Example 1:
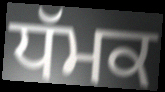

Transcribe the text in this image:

ਧੱਮਕ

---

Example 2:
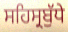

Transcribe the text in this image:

ਸਹਿਸ੍ਰਬੁੱਧੇ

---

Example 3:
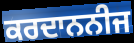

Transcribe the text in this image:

ਕਰਦਾਨਨੀਜ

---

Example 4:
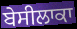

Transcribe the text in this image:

ਬੇਸੀਲਾਕਾ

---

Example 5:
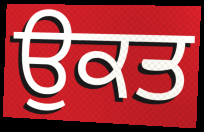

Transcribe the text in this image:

ਉੁਕਤ